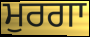
ਮੁਰਗਾ